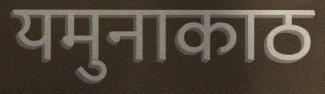
यमुनाकाठ